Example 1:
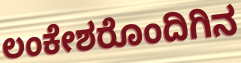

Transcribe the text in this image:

ಲಂಕೇಶರೊಂದಿಗಿನ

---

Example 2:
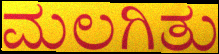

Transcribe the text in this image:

ಮಲಗಿತು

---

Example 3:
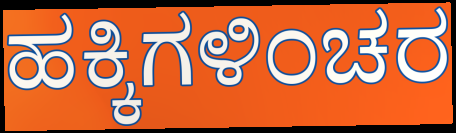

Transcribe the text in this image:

ಹಕ್ಕಿಗಳಿಂಚರ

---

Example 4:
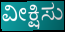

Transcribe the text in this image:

ವೀಕ್ಷಿಸು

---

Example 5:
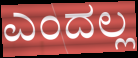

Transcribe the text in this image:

ಎಂದಲ್ಲ